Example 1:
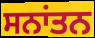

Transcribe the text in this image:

ਸਨਾਂਤਨ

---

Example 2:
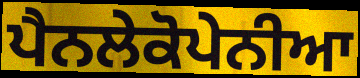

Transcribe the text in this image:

ਪੈਨਲੇਕੋਪੇਨੀਆ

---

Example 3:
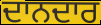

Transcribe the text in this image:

ਦਾਨਦਾਰ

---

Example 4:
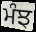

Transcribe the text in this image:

ਮੰਝ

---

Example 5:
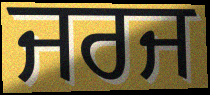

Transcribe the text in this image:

ਜਰਜ